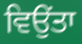
ਵਿਉਂਤਾ